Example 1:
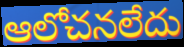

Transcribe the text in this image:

ఆలోచనలేదు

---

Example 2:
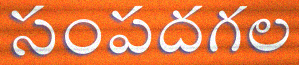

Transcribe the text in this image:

సంపదగల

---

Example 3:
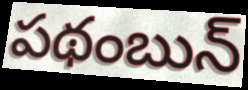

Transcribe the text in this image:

పథంబున్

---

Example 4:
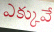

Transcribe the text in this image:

ఎక్కువే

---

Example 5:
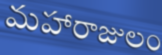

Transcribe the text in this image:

మహారాజులం